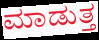
ಮಾಡುತ್ತ